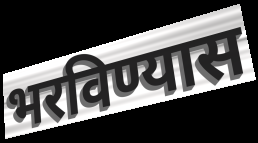
भरविण्यास